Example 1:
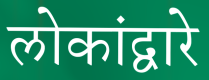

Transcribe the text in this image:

लोकांद्वारे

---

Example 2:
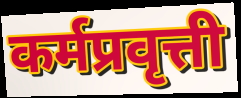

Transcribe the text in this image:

कर्मप्रवृत्ती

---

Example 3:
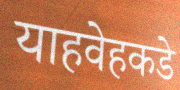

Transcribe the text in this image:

याहवेहकडे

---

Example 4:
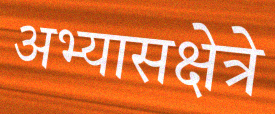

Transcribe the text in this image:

अभ्यासक्षेत्रे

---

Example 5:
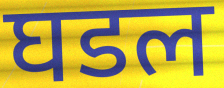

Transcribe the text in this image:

घडल